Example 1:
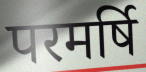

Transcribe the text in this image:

परमर्षि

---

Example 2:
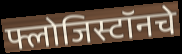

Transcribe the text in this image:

फ्लोजिस्टॉनचे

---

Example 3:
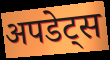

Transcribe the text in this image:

अपडेट्स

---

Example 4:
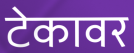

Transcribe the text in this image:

टेकावर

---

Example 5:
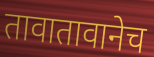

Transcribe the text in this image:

तावातावानेच